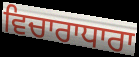
ਵਿਚਾਰਾਧਾਰਾ